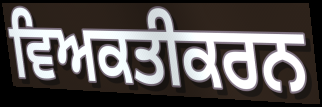
ਵਿਅਕਤੀਕਰਨ